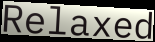
Relaxed